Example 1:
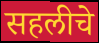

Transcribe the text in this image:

सहलीचे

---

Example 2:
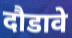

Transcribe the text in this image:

दौडावे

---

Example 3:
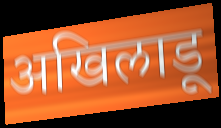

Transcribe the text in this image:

अखिलाडू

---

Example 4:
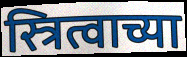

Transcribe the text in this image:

स्त्रित्वाच्या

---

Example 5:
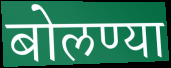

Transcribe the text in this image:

बोलण्या